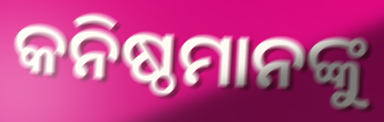
କନିଷ୍ଠମାନଙ୍କୁ